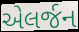
એલર્જન